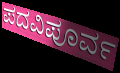
ಪದವಿಪೂರ್ವ